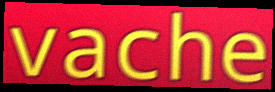
vache